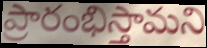
ప్రారంభిస్తామని